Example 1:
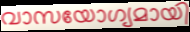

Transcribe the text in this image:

വാസയോഗ്യമായി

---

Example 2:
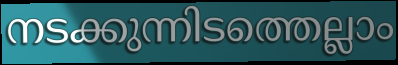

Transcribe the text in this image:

നടക്കുന്നിടത്തെല്ലാം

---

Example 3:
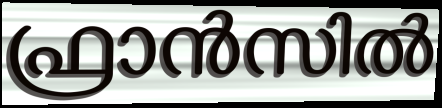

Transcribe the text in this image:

ഫ്രാൻസിൽ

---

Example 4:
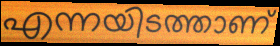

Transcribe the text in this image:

എന്നയിടത്താണ്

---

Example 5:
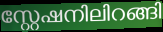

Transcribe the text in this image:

സ്റ്റേഷനിലിറങ്ങി